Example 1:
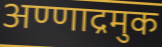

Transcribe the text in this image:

अण्णाद्रमुक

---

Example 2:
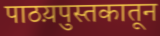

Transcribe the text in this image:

पाठय़पुस्तकातून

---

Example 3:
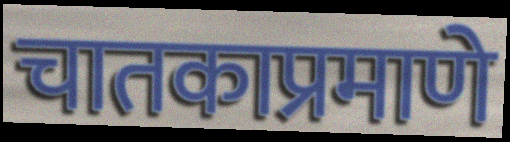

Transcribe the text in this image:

चातकाप्रमाणे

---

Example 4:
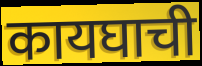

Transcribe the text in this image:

कायघाची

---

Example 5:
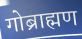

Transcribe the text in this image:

गोब्राह्मण